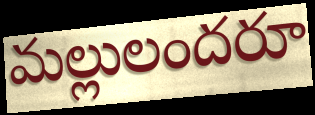
మల్లులందరూ